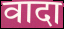
वादा